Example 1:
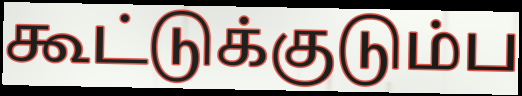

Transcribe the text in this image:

கூட்டுக்குடும்ப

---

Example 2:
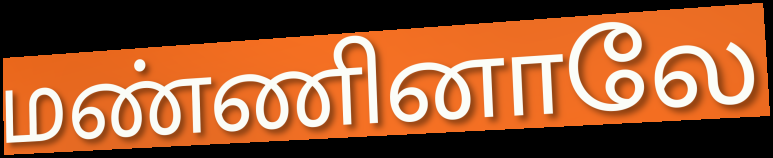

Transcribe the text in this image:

மண்ணினாலே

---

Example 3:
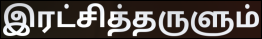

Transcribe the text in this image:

இரட்சித்தருளும்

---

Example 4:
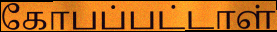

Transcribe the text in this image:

கோபப்பட்டாள்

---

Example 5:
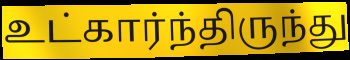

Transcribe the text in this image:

உட்கார்ந்திருந்து